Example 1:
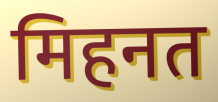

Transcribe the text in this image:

मिहनत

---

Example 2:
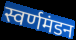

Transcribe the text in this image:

स्वर्णमंडन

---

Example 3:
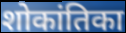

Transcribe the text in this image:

शोकांतिका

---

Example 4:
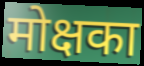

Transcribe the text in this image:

मोक्षका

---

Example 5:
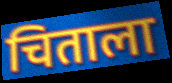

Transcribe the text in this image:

चिताला